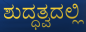
ಶುದ್ಧತ್ವದಲ್ಲಿ